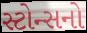
સ્ટોન્સનો